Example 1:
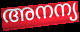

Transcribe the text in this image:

അനന്യ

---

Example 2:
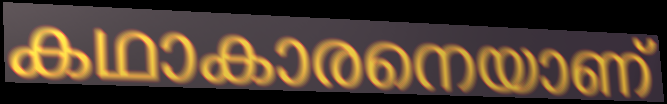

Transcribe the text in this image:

കഥാകാരനെയാണ്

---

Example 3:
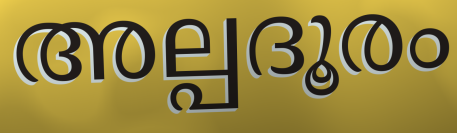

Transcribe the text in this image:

അല്പദൂരം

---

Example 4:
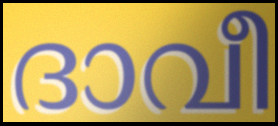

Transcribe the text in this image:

ദാവീ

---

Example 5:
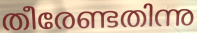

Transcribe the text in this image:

തീരേണ്ടതിന്നു